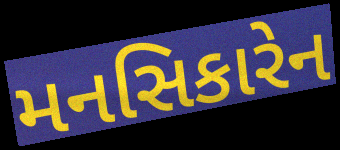
મનસિકારેન